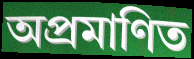
অপ্ৰমাণিত